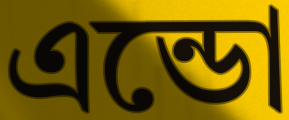
এন্ডো